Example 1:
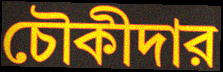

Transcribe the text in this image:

চৌকীদার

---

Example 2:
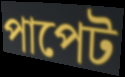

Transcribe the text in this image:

পাপেট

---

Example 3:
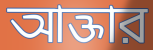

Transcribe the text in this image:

আক্তার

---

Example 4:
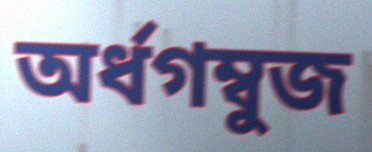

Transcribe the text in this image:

অর্ধগম্বুজ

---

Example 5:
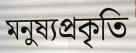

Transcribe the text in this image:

মনুষ্যপ্রকৃতি